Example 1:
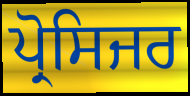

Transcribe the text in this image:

ਪ੍ਰੋਸਿਜਰ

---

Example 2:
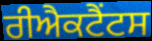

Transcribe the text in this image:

ਰੀਐਕਟੈਂਟਸ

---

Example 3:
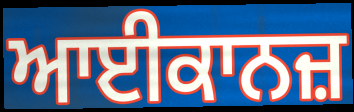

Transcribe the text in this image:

ਆਈਕਾਨਜ਼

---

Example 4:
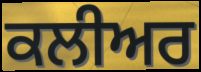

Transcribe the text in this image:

ਕਲੀਅਰ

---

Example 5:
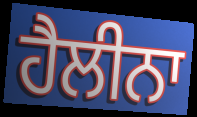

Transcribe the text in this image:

ਹੈਲੀਨਾ